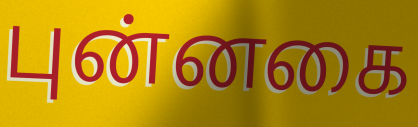
புன்னகை